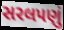
સરલપણું